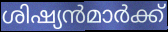
ശിഷ്യൻമാർക്ക്